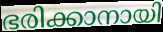
ഭരിക്കാനായി